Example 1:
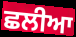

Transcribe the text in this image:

ਛਲੀਆ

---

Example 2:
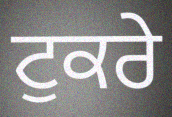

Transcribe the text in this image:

ਟੁਕਰੇ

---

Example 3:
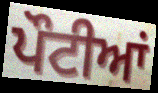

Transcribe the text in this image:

ਪੌਟੀਆਂ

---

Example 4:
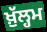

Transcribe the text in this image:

ਖ਼ੁੱਲ੍ਹਮ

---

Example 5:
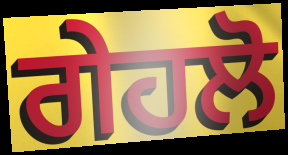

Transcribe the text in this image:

ਗੇਹਲੋ